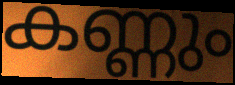
കണ്ണും